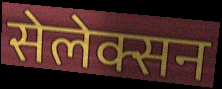
सेलेक्सन